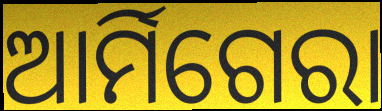
ଆର୍ମିଗେରା